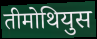
तीमोथियुस